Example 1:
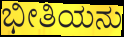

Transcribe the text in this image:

ಭೀತಿಯನು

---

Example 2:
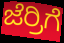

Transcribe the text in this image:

ಜೆರ್ರಿಗೆ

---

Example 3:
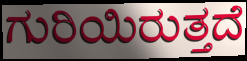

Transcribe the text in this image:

ಗುರಿಯಿರುತ್ತದೆ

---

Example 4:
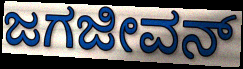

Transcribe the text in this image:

ಜಗಜೀವನ್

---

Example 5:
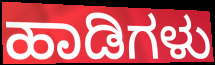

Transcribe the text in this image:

ಹಾಡಿಗಳು